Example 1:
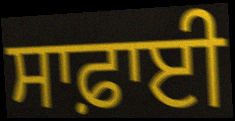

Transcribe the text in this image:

ਸਾਫ਼ਾਈ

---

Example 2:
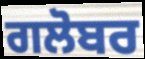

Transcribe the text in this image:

ਗਲੋਬਰ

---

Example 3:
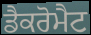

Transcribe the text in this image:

ਡੈਕਰੋਮੈਟ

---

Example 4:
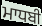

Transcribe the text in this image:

ਮਾਧਬੀ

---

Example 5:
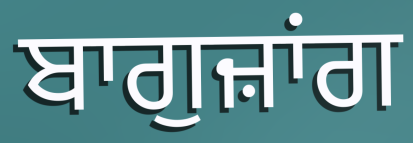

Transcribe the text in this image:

ਬਾਗੁਜ਼ਾਂਗ